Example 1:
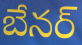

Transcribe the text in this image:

బేనర్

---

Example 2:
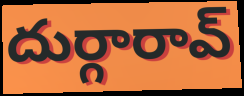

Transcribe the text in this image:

దుర్గారావ్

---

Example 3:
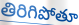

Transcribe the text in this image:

తిరిగిపోతూ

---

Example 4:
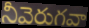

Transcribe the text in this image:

నీవెరుగవా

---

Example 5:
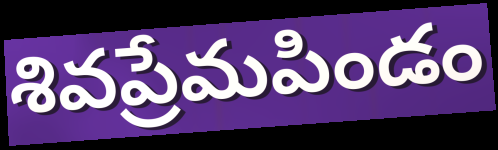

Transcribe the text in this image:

శివప్రేమపిండం